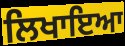
ਲਿਖਾਇਆ